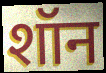
शॉन